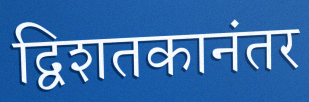
द्विशतकानंतर